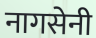
नागसेनी